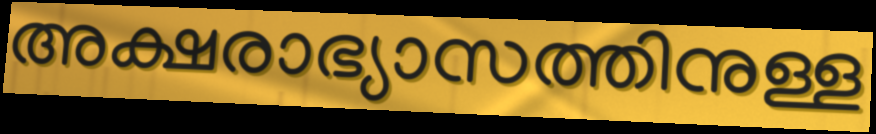
അക്ഷരാഭ്യാസത്തിനുള്ള